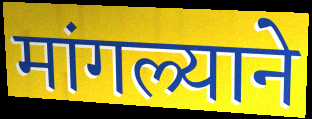
मांगल्याने